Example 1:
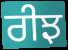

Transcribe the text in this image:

ਰੀਝ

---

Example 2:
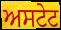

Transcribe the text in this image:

ਅਸਟੇਟ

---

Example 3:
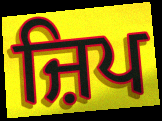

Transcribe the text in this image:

ਜ਼ਿਪ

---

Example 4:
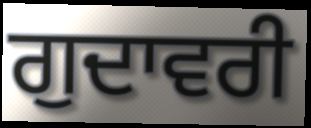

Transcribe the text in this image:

ਗੁਦਾਵਰੀ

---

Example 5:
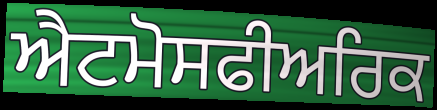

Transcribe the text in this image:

ਐਟਮੋਸਫੀਅਰਿਕ